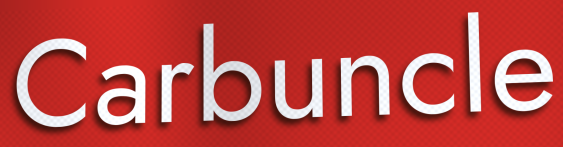
Carbuncle